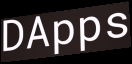
DApps